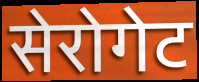
सेरोगेट